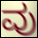
ವು